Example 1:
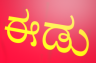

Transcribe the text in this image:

ಈಡು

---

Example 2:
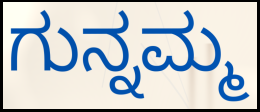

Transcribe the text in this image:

ಗುನ್ನಮ್ಮ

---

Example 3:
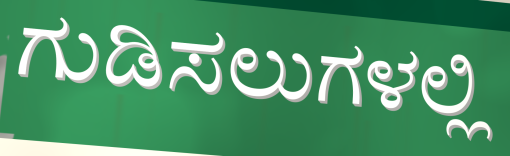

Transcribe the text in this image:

ಗುಡಿಸಲುಗಳಲ್ಲಿ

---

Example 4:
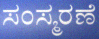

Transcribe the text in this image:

ಸಂಸ್ಮರಣೆ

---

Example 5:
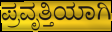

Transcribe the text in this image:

ಪ್ರವೃತ್ತಿಯಾಗಿ